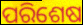
ପରିଶେଷ